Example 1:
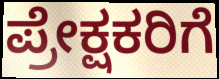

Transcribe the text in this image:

ಪ್ರೇಕ್ಷಕರಿಗೆ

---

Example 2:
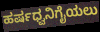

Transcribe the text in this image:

ಹರ್ಷಧ್ವನಿಗೈಯಲು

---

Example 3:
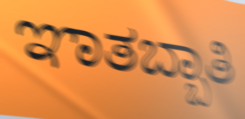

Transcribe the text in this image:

ಞಾತಬ್ಬಾತಿ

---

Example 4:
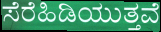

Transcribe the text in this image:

ಸೆರೆಹಿಡಿಯುತ್ತವೆ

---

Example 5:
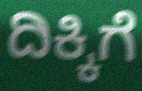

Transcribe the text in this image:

ದಿಕ್ಕಿಗೆ